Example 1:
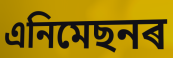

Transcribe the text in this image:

এনিমেছনৰ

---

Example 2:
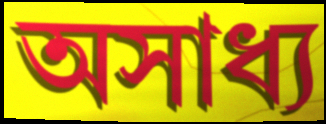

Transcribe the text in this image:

অসাধ্য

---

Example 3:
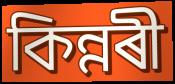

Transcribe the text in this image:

কিন্নৰী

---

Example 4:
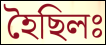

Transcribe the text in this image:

হৈছিলঃ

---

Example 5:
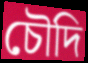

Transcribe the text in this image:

চৌদি